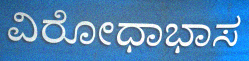
ವಿರೋಧಾಭಾಸ